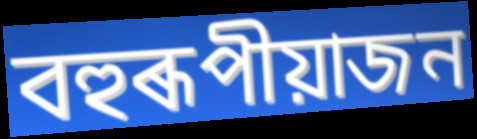
বহুৰূপীয়াজন